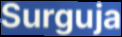
Surguja